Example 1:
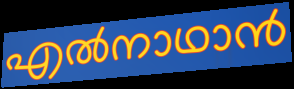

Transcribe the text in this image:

എൽനാഥാൻ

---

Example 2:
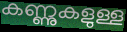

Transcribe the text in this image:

കണ്ണുകളുള്ള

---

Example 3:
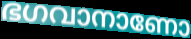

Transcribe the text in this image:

ഭഗവാനാണോ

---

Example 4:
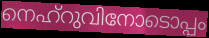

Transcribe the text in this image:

നെഹ്റുവിനോടൊപ്പം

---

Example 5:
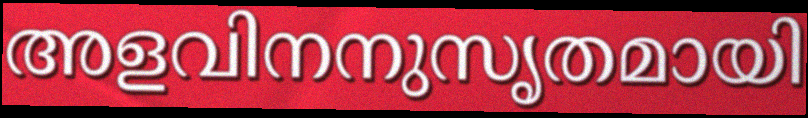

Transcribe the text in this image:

അളവിനനുസൃതമായി